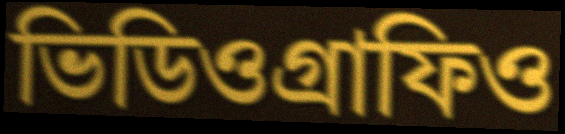
ভিডিওগ্রাফিও